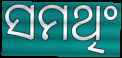
ସମଥିଂ